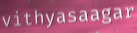
vithyasaagar